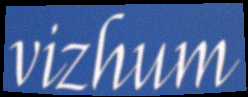
vizhum